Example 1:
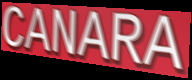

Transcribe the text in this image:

CANARA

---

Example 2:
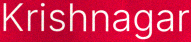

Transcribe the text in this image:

Krishnagar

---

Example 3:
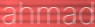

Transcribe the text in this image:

ahmad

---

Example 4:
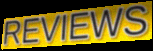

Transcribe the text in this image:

REVIEWS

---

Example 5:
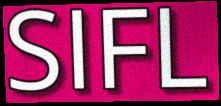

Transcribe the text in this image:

SIFL